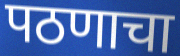
पठणाचा